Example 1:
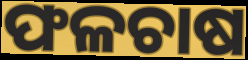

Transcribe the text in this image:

ଫଳଚାଷ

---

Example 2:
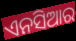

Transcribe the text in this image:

ଏନସିଆର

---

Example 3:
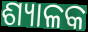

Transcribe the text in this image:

ଶ୍ୟାଳକ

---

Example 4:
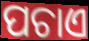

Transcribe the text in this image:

ପଚାଏ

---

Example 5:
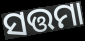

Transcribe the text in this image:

ସତ୍ତମା